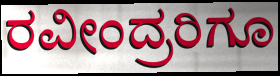
ರವೀಂದ್ರರಿಗೂ